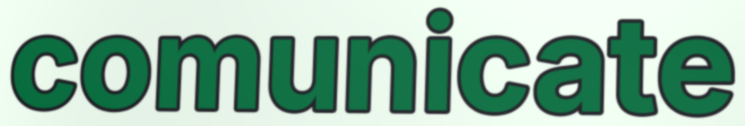
comunicate